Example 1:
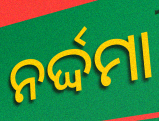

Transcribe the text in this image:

ନର୍ଦ୍ଦମା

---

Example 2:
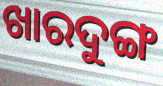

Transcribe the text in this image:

ଖାରଦୁଙ୍ଗ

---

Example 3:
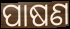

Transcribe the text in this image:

ପାଷଣ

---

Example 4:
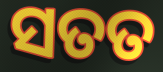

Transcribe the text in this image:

ସତତ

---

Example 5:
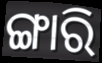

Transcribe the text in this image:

ଙ୍ଗାରି